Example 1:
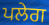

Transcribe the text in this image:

ਪਲੇਗ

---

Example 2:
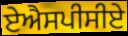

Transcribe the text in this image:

ਏਐਸਪੀਸੀਏ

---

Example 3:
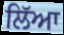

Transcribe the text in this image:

ਲਿੱਆ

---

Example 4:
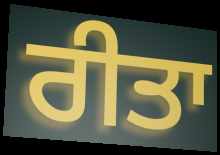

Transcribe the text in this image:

ਰੀਤਾ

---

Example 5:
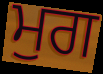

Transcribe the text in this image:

ਮੁਗ